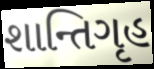
શાન્તિગૃહ